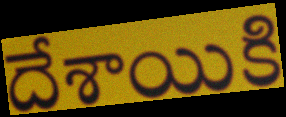
దేశాయికి